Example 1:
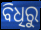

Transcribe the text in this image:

ବିଧିରୁ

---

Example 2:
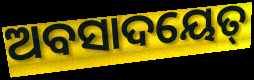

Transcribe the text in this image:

ଅବସାଦୟେତ୍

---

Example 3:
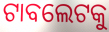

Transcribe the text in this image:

ଟାବଲେଟକୁ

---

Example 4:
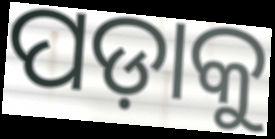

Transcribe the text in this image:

ପଡ଼ାକୁ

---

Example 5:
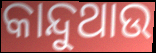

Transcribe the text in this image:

କାନ୍ଦୁଥାଉ